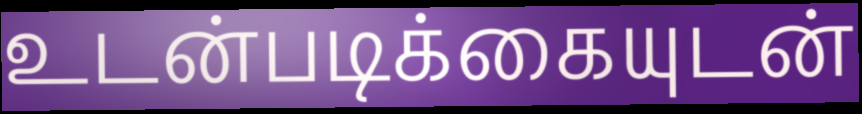
உடன்படிக்கையுடன்